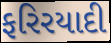
ફરિરયાદી